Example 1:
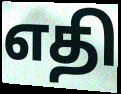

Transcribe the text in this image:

எதி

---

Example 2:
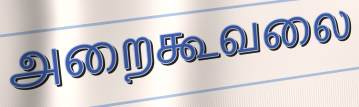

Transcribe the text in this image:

அறைகூவலை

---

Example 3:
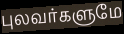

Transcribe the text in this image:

புலவர்களுமே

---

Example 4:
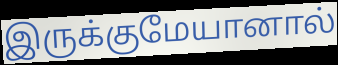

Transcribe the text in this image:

இருக்குமேயானால்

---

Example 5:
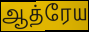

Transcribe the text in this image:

ஆத்ரேய